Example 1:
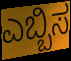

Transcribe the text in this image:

ಎಬ್ಬಿಸ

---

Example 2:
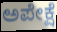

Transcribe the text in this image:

ಅಪೇಕ್ಷೆ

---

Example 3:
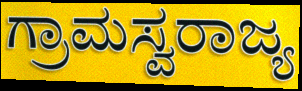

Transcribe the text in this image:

ಗ್ರಾಮಸ್ವರಾಜ್ಯ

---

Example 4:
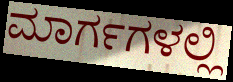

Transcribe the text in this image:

ಮಾರ್ಗಗಳಲ್ಲಿ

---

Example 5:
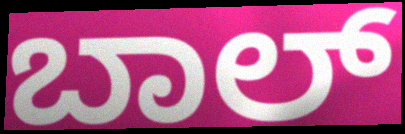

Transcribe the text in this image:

ಬಾಲ್